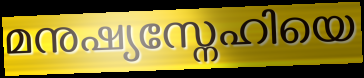
മനുഷ്യസ്നേഹിയെ